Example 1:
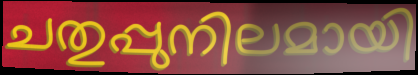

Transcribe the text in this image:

ചതുപ്പുനിലമായി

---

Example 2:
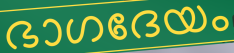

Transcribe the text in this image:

ഭാഗദേയം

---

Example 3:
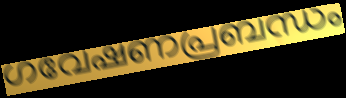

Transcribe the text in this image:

ഗവേഷണപ്രബന്ധം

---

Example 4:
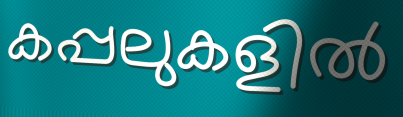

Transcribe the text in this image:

കപ്പലുകളിൽ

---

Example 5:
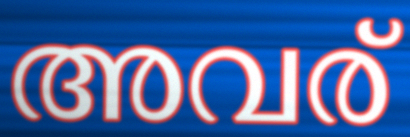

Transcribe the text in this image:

അവര്